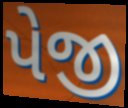
પેજી